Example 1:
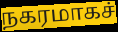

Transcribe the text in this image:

நகரமாகச்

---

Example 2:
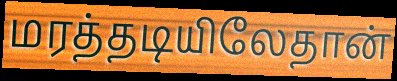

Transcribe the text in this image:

மரத்தடியிலேதான்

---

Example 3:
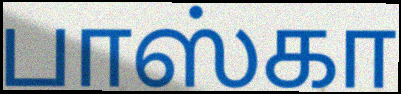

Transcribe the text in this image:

பாஸ்கா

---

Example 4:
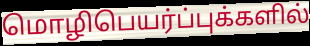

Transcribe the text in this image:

மொழிபெயர்ப்புக்களில்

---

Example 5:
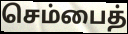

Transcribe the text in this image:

செம்பைத்